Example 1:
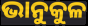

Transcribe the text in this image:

ଭାନୁକୁଳ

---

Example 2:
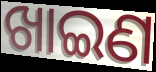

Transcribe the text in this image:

ଖାଇଣ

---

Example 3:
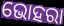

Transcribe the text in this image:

ଭୋହରା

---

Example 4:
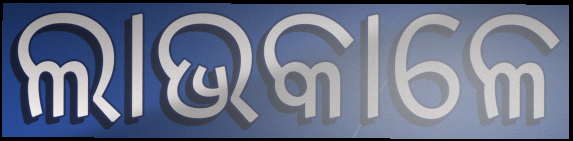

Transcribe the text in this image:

ଲାଭକାଳେ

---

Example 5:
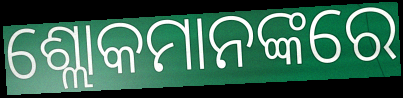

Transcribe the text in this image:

ଶ୍ଲୋକମାନଙ୍କରେ